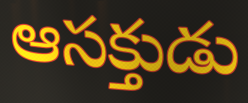
ఆసక్తుడు